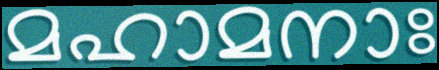
മഹാമനാഃ